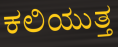
ಕಲಿಯುತ್ತ